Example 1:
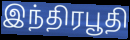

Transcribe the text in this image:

இந்திரபூதி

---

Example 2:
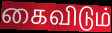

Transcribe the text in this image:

கைவிடும்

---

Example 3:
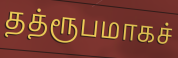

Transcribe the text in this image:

தத்ரூபமாகச்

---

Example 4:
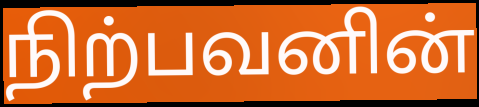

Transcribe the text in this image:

நிற்பவனின்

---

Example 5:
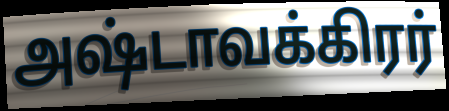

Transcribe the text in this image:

அஷ்டாவக்கிரர்